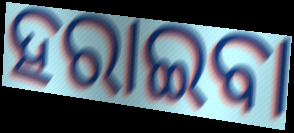
ହରାଇବା